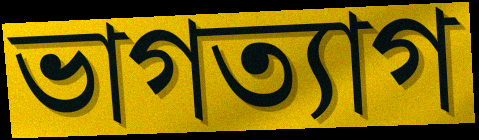
ভাগত্যাগ